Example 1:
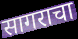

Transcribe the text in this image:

सागराचा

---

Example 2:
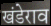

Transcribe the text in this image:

खंडेराव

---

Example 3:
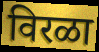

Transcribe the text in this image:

विरळा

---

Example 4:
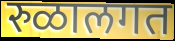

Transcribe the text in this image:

रुळालगत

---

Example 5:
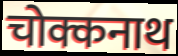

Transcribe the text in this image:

चोक्कनाथ